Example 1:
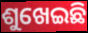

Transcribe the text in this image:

ଶୁଖେଇଛି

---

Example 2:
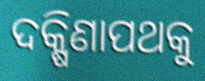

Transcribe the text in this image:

ଦକ୍ଷିଣାପଥକୁ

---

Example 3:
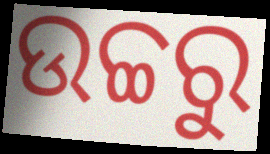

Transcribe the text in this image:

ଉଚ୍ଚରୁ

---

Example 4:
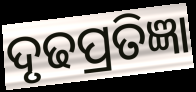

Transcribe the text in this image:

ଦୃଢପ୍ରତିଜ୍ଞା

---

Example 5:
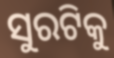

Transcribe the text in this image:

ସୁରଟିକୁ